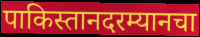
पाकिस्तानदरम्यानचा